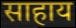
साहाय